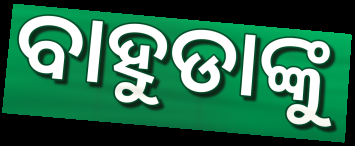
ବାହୁଡାଙ୍କୁ